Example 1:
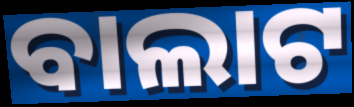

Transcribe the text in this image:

ବାଲାଟ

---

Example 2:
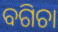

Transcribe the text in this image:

ବଗିଚା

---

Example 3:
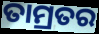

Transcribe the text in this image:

ତାମ୍ରତର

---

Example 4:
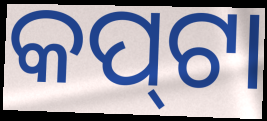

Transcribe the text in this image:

କପ୍‍ଟା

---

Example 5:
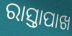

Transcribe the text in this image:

ରାସ୍ତାପାଖ